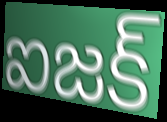
ఐజక్